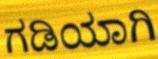
ಗಡಿಯಾಗಿ